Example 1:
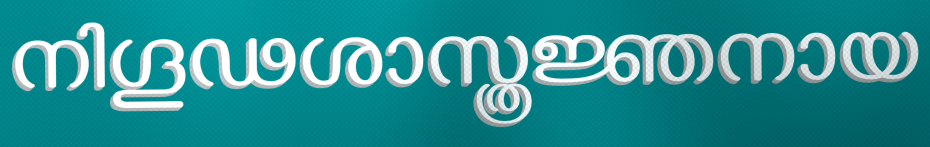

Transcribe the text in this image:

നിഗൂഢശാസ്ത്രജ്ഞനായ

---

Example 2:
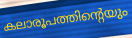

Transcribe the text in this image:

കലാരൂപത്തിന്റെയും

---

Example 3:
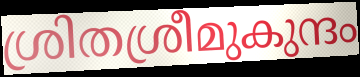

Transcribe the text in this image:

ശ്രിതശ്രീമുകുന്ദം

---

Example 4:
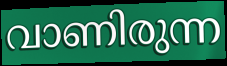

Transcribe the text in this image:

വാണിരുന്ന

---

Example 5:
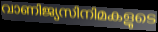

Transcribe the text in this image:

വാണിജ്യസിനിമകളുടെ